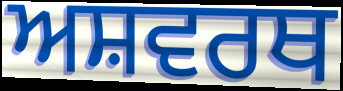
ਅਸ਼ਵਰਥ